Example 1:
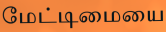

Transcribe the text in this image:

மேட்டிமையை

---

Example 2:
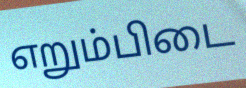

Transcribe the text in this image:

எறும்பிடை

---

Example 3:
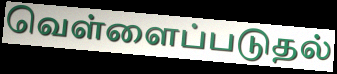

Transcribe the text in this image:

வெள்ளைப்படுதல்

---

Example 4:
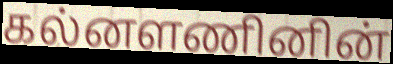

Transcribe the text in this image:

கல்னளணினின்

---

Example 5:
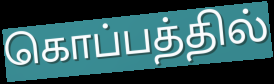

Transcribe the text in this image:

கொப்பத்தில்